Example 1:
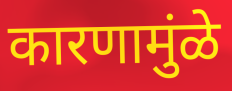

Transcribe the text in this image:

कारणामुंळे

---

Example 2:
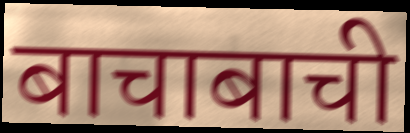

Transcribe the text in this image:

बाचाबाची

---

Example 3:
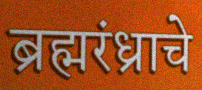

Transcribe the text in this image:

ब्रह्मरंध्राचे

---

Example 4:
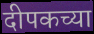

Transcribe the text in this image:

दीपकच्या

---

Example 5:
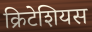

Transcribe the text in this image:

क्रिटेशियस